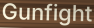
Gunfight